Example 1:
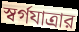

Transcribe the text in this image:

স্বর্গযাত্রার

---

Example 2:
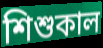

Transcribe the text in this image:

শিশুকাল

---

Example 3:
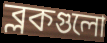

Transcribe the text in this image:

ব্লকগুলো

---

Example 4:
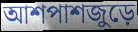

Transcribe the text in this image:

আশপাশজুড়ে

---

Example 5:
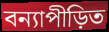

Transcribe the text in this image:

বন্যাপীড়িত